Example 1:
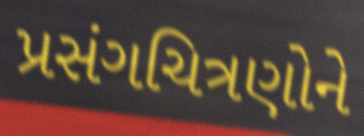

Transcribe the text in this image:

પ્રસંગચિત્રણોને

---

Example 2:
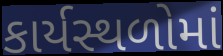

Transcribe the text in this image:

કાર્યસ્થળોમાં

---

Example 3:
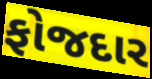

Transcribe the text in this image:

ફોજદાર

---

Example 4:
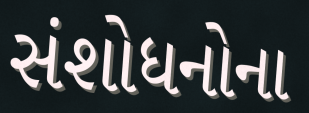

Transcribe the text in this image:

સંશોધનોના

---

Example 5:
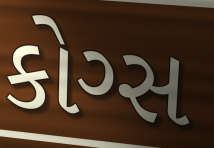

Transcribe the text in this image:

કોગ્સ